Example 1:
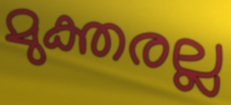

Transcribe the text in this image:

മുക്തരല്ല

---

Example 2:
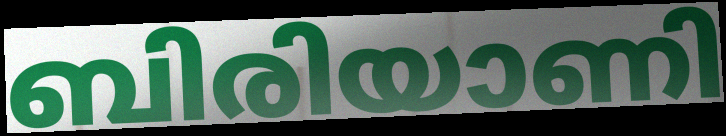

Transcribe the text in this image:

ബിരിയാണി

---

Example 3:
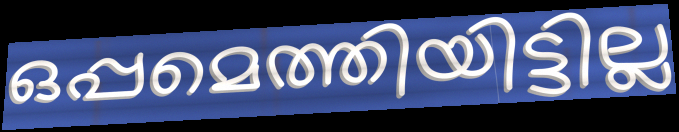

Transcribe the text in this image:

ഒപ്പമെത്തിയിട്ടില്ല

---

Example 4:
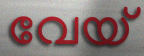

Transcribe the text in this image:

വേയ്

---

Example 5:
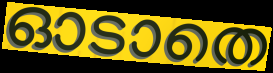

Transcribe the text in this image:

ഓടാതെ